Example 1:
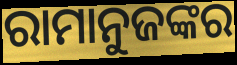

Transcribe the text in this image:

ରାମାନୁଜଙ୍କର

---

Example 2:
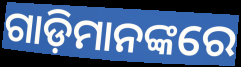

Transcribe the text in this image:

ଗାଡ଼ିମାନଙ୍କରେ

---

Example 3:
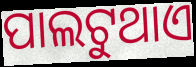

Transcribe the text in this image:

ପାଲଟୁଥାଏ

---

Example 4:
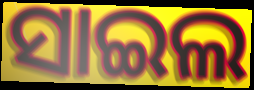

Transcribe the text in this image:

ସାଇଲ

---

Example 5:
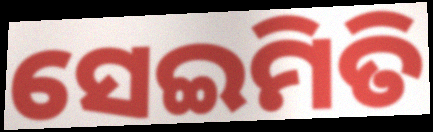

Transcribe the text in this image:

ସେଇମିତି